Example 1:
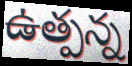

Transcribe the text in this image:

ఉత్పన్న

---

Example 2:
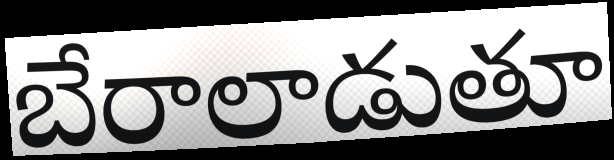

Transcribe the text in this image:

బేరాలాడుతూ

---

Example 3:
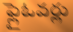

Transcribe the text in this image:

ఫ్లైఓవర్లు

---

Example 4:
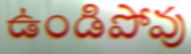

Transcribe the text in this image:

ఉండిపోవు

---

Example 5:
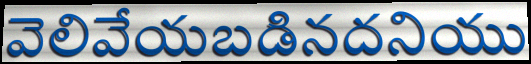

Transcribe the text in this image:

వెలివేయబడినదనియు